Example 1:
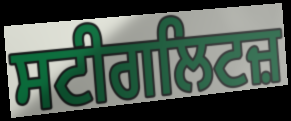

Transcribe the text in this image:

ਸਟੀਗਲਿਟਜ਼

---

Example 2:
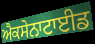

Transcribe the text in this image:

ਐਕਸੇਨਾਟਾਈਡ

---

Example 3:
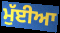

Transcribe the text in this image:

ਮੁੱਈਆ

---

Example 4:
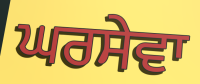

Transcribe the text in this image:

ਘਰਸੇਵਾ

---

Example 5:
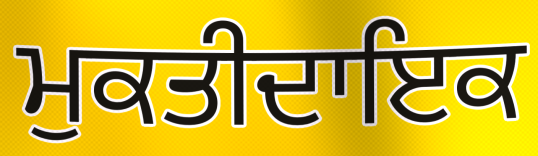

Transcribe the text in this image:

ਮੁਕਤੀਦਾਇਕ